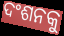
ଦଂଶନକୁ